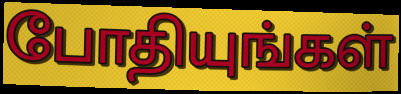
போதியுங்கள்